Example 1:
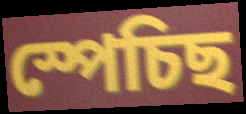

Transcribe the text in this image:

স্পেচিছ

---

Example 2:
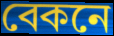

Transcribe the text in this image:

বেকনে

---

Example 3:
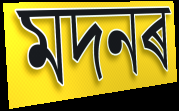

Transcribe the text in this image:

মদনৰ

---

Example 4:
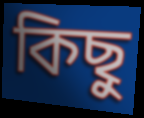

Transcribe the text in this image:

কিছু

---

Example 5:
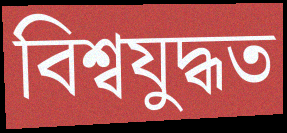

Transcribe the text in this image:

বিশ্বযুদ্ধত